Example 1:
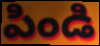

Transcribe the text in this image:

పిండి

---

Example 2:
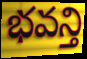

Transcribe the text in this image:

భవన్తి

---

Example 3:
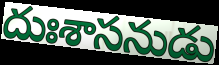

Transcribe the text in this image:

దుఃశాసనుడు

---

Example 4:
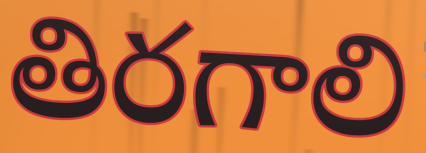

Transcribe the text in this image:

తిరగాలి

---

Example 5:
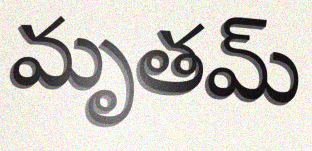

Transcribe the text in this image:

మృతమ్